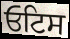
ਓਟਿਸ